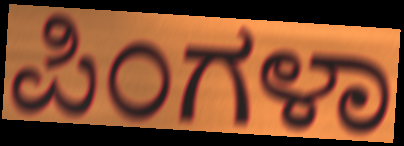
ಪಿಂಗಳಾ